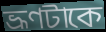
ভ্রূণটাকে